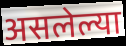
असलेल्या